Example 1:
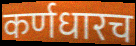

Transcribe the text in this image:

कर्णधारच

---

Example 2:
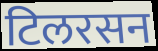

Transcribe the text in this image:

टिलरसन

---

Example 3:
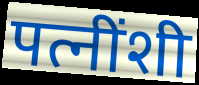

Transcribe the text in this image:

पत्नींशी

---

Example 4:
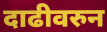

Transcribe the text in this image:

दाढीवरुन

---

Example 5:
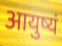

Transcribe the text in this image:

आयुष्यं